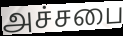
அச்சபை